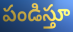
పండిస్తూ